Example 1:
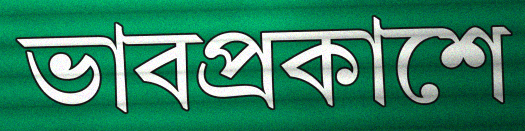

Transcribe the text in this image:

ভাবপ্রকাশে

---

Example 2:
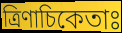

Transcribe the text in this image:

ত্রিণাচিকেতাঃ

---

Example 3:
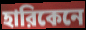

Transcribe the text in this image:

হারিকেনে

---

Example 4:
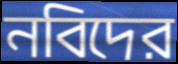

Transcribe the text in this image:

নবিদের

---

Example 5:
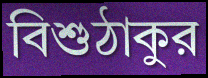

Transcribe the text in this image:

বিশুঠাকুর